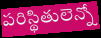
పరిస్థితులెన్నో